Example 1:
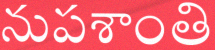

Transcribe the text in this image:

నుపశాంతి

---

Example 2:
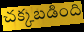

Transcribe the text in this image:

చక్కబడింది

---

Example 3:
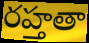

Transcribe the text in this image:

రహ్తతా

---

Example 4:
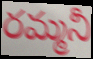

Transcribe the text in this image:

రమ్మనీ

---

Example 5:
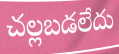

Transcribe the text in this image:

చల్లబడలేదు